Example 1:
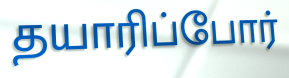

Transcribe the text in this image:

தயாரிப்போர்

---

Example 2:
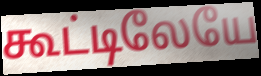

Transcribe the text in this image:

கூட்டிலேயே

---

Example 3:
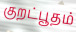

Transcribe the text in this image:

குறட்பூதம்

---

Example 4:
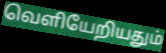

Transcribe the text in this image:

வெளியேறியதும்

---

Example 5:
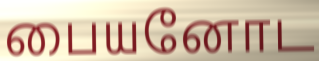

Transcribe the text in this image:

பையனோட